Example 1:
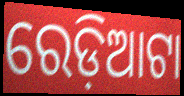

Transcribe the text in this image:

ରେଡ଼ିଆଟା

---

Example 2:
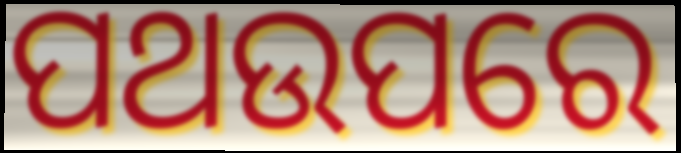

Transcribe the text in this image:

ପଥଉପରେ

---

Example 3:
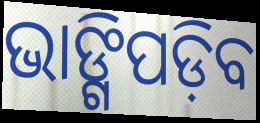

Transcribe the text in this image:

ଭାଙ୍ଗିପଡ଼ିବ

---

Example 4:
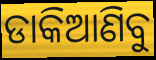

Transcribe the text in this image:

ଡାକିଆଣିବୁ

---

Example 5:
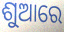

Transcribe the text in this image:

ଶୁଆରେ